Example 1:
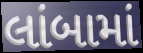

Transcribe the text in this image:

લાંબામાં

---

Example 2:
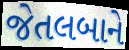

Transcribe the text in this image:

જેતલબાને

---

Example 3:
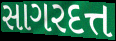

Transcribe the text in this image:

સાગરદત્ત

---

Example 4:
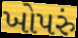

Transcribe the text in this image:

ખોપરું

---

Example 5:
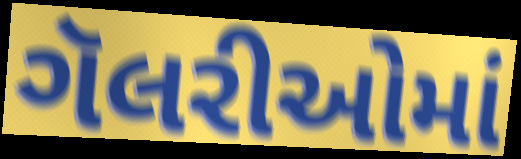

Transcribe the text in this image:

ગૅલરીઓમાં